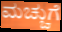
ಮಚ್ಚುಗೆ